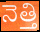
నెత్తి